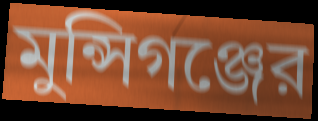
মুন্সিগঞ্জের